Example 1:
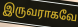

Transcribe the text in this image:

இருவராகவே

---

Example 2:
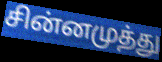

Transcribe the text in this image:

சின்னமுத்து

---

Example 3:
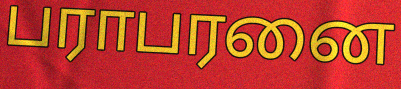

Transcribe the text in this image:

பராபரனை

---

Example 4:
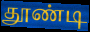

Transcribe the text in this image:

தூண்டி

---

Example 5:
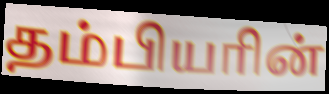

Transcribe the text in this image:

தம்பியரின்